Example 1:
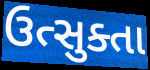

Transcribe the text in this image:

ઉત્સુક્તા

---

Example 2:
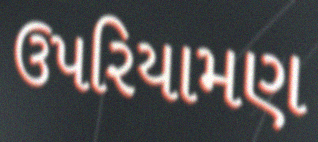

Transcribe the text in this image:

ઉપરિયામણ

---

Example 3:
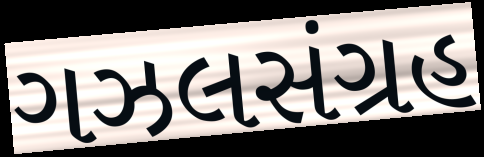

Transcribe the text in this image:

ગઝલસંગ્રહ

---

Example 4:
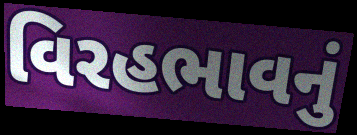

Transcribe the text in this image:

વિરહભાવનું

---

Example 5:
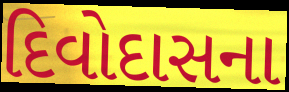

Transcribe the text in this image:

દિવોદાસના